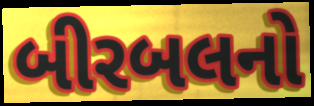
બીરબલનો